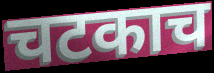
चटकाच